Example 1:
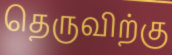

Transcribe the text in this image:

தெருவிற்கு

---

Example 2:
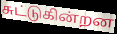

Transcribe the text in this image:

சுட்டுகின்றன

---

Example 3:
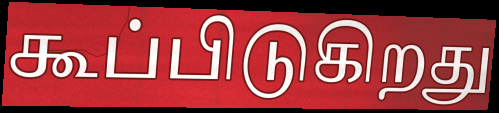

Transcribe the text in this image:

கூப்பிடுகிறது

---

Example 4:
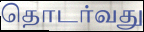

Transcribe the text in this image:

தொடர்வது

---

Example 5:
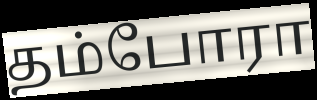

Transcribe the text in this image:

தம்போரா